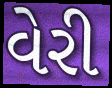
વેરી